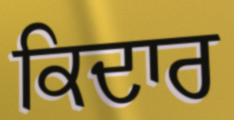
ਕਿਦਾਰ